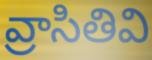
వ్రాసితివి